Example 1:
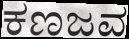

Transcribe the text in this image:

ಕಣಜವ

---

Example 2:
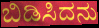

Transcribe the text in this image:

ಬಿಡಿಸಿದನು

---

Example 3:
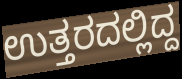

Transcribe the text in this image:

ಉತ್ತರದಲ್ಲಿದ್ದ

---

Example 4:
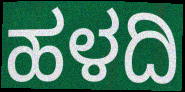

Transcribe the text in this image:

ಹಳದಿ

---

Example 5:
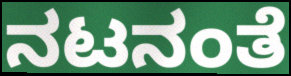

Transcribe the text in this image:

ನಟನಂತೆ